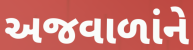
અજવાળાંને